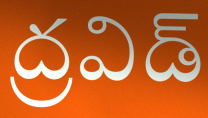
ద్రవిడ్